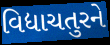
વિદ્યાચતુરને